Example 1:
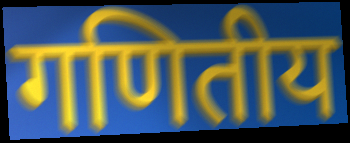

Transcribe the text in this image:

गणितीय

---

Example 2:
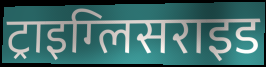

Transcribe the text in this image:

ट्राइग्लिसराइड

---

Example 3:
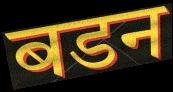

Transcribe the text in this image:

बडन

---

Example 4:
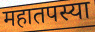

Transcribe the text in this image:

महातपस्या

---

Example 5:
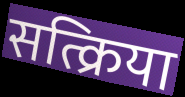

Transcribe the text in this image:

सत्क्रिया